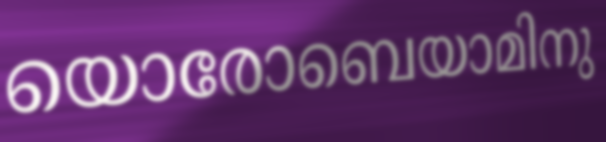
യൊരോബെയാമിനു